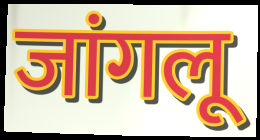
जांगलू